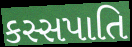
કસ્સપાતિ